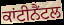
ਕਾਂਟੀਨੈਂਟਲ